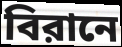
বিরানে